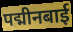
पद्मीनबाई